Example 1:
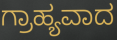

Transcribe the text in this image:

ಗ್ರಾಹ್ಯವಾದ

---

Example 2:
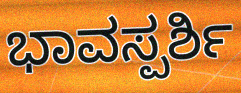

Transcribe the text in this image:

ಭಾವಸ್ಪರ್ಶಿ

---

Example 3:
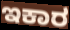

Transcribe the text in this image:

ಇಕಾರ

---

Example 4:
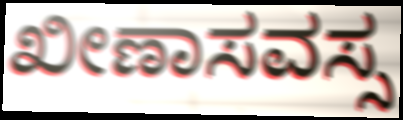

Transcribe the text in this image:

ಖೀಣಾಸವಸ್ಸ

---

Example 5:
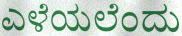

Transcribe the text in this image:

ಎಳೆಯಲೆಂದು